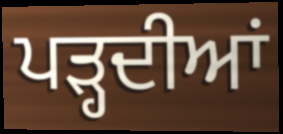
ਪੜ੍ਹਦੀਆਂ